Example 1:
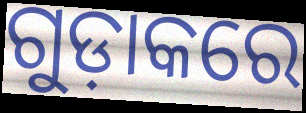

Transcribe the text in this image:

ଗୁଡ଼ାକରେ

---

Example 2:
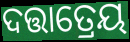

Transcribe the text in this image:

ଦତ୍ତାତ୍ରେୟ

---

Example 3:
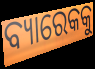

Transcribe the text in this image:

ବ୍ୟାରେକକୁ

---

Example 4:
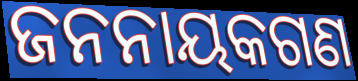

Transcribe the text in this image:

ଜନନାୟକଗଣ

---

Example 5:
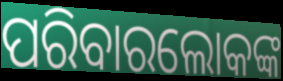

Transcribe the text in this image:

ପରିବାରଲୋକଙ୍କ